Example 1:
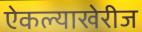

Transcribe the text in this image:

ऐकल्याखेरीज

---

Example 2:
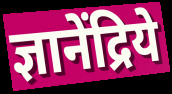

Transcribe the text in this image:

ज्ञानेंद्रिये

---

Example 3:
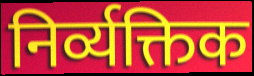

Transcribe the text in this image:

निर्व्यक्तिक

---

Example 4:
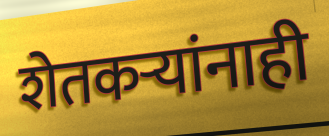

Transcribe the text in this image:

शेतकऱ्यांनाही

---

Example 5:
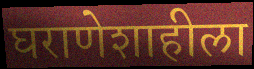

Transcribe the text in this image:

घराणेशाहीला